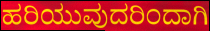
ಹರಿಯುವುದರಿಂದಾಗಿ